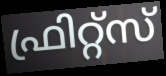
ഫ്രിറ്റ്സ്